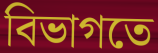
বিভাগতে